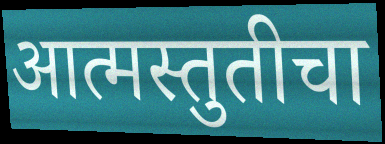
आत्मस्तुतीचा